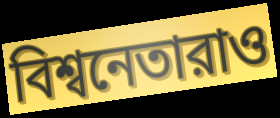
বিশ্বনেতারাও